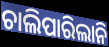
ଚାଲିପାରିଲାନି